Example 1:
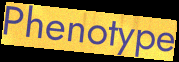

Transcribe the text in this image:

Phenotype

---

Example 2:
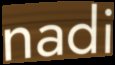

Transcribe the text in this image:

nadi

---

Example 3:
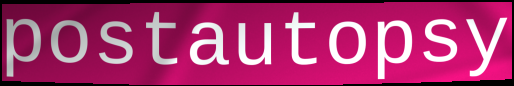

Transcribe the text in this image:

postautopsy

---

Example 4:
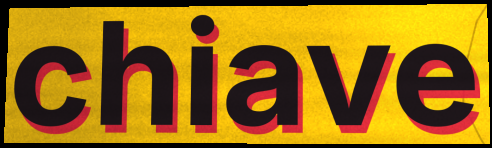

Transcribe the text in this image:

chiave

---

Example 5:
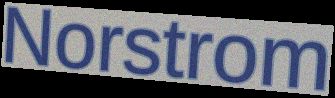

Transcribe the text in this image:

Norstrom